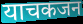
याचकजन